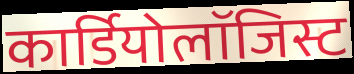
कार्डियोलॉजिस्ट